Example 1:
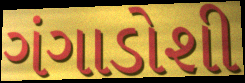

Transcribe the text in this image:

ગંગાડોશી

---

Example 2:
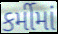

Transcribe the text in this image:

કર્મીમાં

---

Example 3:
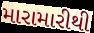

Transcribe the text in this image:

મારામારીથી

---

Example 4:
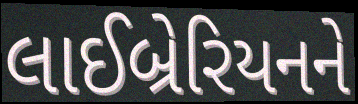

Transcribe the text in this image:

લાઈબ્રેરિયનને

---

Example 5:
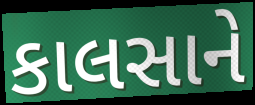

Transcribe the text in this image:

કાલસાને